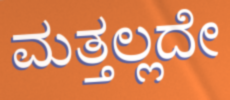
ಮತ್ತಲ್ಲದೇ